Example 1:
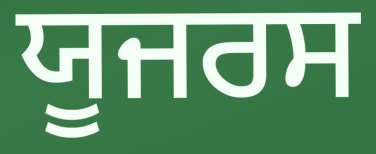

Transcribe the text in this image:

ਯੂਜਰਸ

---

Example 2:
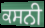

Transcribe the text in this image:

ਕਸਨੀ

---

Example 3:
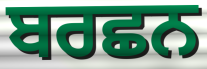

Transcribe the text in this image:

ਬਰਛਨ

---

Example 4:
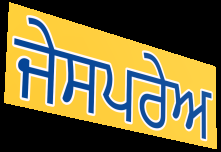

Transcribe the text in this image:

ਜੇਸਪਰੇਅ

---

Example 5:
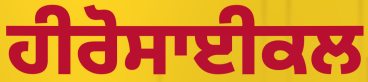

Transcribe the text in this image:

ਹੀਰੋਸਾਈਕਲ